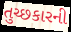
તુચ્છકારની